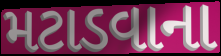
મટાડવાના